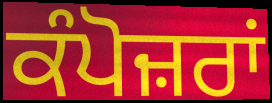
ਕੰਪੋਜ਼ਰਾਂ